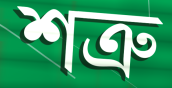
শত্ৰু